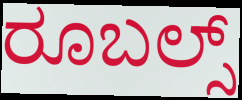
ರೂಬಲ್ಸ್